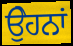
ਉੇਹਨਾਂ